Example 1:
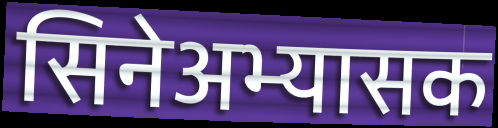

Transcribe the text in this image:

सिनेअभ्यासक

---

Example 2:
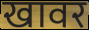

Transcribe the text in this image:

खावर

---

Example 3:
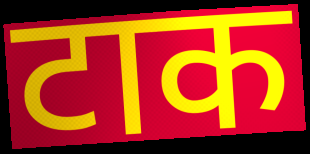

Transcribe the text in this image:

टाक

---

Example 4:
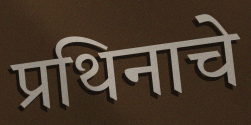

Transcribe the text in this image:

प्रथिनाचे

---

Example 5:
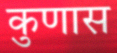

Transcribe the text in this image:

कुणास